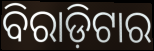
ବିରାଡ଼ିଟାର